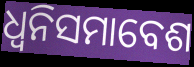
ଧ୍ୱନିସମାବେଶ